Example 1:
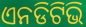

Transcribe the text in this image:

ଏନଡିଟିଭି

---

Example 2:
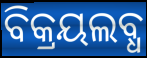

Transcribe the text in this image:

ବିକ୍ରୟଲବ୍ଧ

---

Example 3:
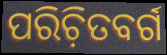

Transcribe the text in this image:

ପରିଚ଼ିତବର୍ଗ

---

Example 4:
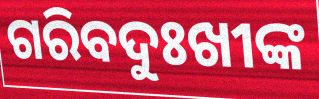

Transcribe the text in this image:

ଗରିବଦୁଃଖୀଙ୍କ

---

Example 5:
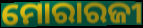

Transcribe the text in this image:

ମୋରାରଜୀ